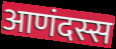
आणंदस्स